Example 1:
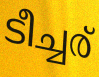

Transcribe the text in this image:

ടീച്ചര്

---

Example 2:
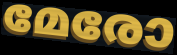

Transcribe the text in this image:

മേരോ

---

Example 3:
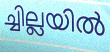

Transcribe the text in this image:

ച്ചില്ലയിൽ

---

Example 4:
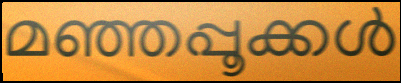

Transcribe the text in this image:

മഞ്ഞപ്പൂക്കൾ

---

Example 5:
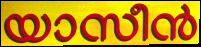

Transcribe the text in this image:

യാസീൻ